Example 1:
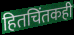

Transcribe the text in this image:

हितचिंतकही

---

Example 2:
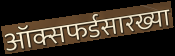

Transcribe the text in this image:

ऑक्सफर्डसारख्या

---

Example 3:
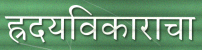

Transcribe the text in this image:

ह्रदयविकाराचा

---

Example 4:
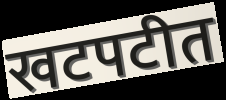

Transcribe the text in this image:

खटपटीत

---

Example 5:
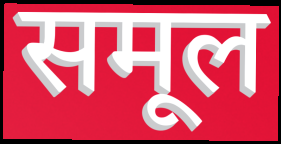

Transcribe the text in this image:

समूल